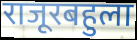
राजूरबहुला